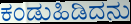
ಕಂಡುಹಿಡಿದನು